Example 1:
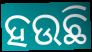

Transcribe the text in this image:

ହଉଛି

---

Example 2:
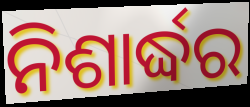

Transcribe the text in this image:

ନିଶାର୍ଦ୍ଧର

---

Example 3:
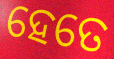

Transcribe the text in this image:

ହେତେ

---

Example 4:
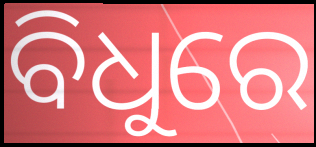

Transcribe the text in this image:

ବିଧୁରେ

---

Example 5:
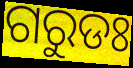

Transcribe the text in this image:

ଗରୁଡଃ